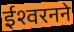
ईश्वरनने